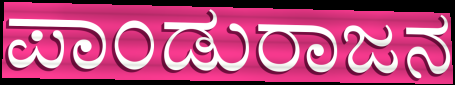
ಪಾಂಡುರಾಜನ